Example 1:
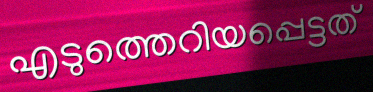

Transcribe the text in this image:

എടുത്തെറിയപ്പെട്ടത്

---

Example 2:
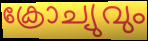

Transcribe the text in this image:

ക്രോച്യുവും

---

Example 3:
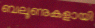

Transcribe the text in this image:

ബലൂണുകളായി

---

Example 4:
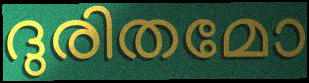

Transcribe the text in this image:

ദുരിതമോ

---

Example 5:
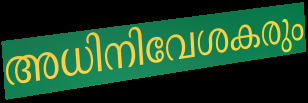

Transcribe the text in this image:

അധിനിവേശകരും